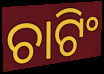
ଚାଟିଂ